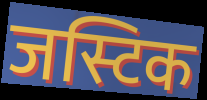
जस्टिक